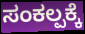
ಸಂಕಲ್ಪಕ್ಕೆ